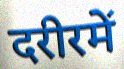
दरीरमें